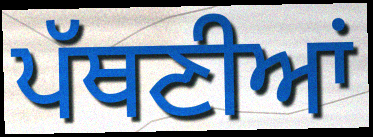
ਪੱਥਣੀਆਂ